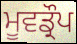
ਮੂਵਡ੍ਰੌਪ